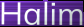
Halim